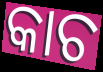
କାଚ